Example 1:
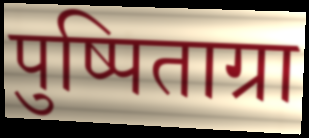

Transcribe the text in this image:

पुष्पिताग्रा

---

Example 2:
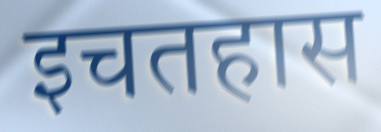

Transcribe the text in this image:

इचतहास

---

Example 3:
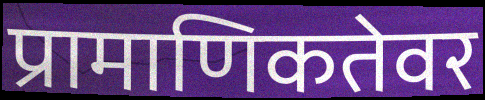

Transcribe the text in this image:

प्रामाणिकतेवर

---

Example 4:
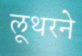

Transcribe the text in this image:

लूथरने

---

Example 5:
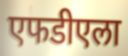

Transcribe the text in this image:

एफडीएला